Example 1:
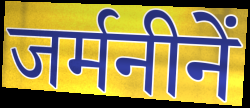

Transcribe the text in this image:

जर्मनीनें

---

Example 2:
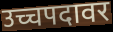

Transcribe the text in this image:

उच्चपदावर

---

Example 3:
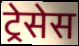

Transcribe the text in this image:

ट्रेसेस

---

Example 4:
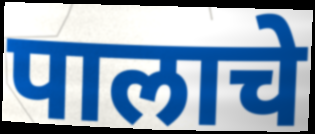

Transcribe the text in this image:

पालाचे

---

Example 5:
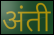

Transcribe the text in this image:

अंती